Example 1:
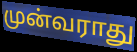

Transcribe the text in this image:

முன்வராது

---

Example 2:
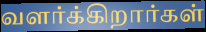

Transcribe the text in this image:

வளர்க்கிறார்கள்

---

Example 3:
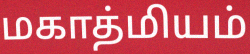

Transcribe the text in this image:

மகாத்மியம்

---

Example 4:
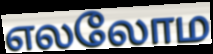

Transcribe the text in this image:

எலலோம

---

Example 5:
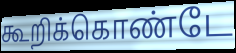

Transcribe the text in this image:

கூறிக்கொண்டே